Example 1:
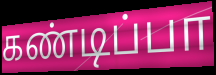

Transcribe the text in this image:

கண்டிப்பா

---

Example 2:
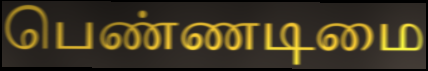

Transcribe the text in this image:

பெண்ணடிமை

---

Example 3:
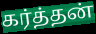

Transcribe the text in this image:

கர்த்தன்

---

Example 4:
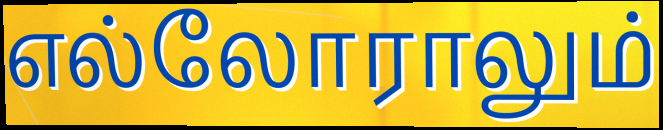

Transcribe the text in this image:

எல்லோராலும்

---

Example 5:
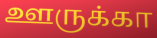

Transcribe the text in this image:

ஊருக்கா